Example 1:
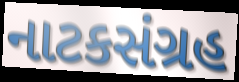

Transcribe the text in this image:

નાટકસંગ્રહ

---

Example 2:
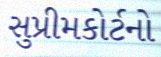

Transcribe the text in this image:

સુપ્રીમકોર્ટનો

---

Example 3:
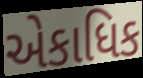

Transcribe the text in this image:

એકાધિક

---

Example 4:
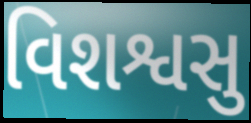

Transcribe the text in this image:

વિશશ્વસુ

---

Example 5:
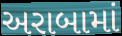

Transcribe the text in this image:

અરાબામાં